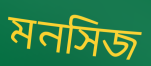
মনসিজ